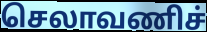
செலாவணிச்